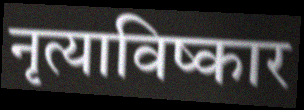
नृत्याविष्कार